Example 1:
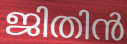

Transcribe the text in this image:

ജിതിൻ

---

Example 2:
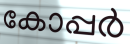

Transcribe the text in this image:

കോപ്പർ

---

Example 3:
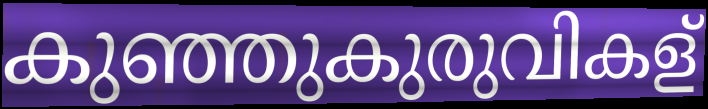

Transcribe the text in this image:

കുഞ്ഞുകുരുവികള്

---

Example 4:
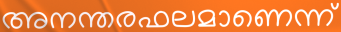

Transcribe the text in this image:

അനന്തരഫലമാണെന്ന്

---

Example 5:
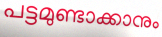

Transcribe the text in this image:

പട്ടമുണ്ടാക്കാനും